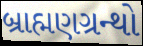
બ્રાહ્મણગ્રન્થો